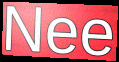
Nee